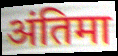
अंतिमा